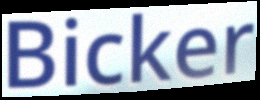
Bicker